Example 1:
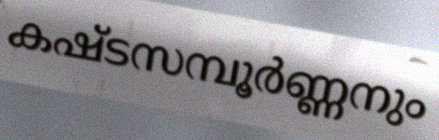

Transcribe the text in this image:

കഷ്ടസമ്പൂർണ്ണനും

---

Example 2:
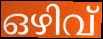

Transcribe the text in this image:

ഒഴിവ്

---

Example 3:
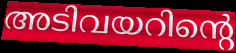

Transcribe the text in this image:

അടിവയറിന്റെ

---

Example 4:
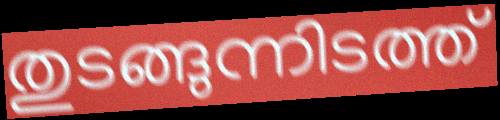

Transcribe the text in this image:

തുടങ്ങുന്നിടത്ത്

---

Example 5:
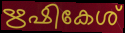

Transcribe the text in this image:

ഋഷികേശ്